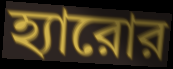
হ্যারোর